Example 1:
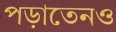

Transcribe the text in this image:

পড়াতেনও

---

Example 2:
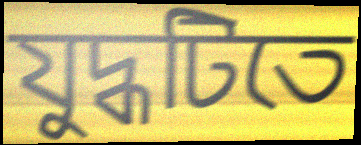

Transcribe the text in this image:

যুদ্ধটিতে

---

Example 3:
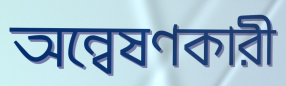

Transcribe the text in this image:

অন্বেষণকারী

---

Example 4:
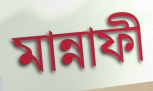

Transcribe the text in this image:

মান্নাফী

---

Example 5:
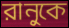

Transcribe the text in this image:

রানুকে